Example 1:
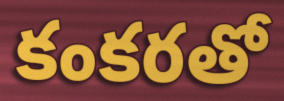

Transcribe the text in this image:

కంకరతో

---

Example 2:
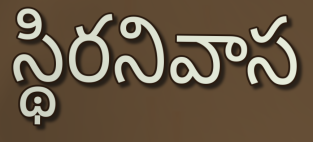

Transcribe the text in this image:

స్థిరనివాస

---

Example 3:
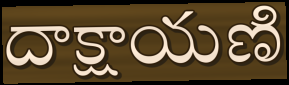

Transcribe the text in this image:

దాక్షాయణి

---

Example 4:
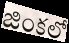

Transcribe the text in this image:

జింకలో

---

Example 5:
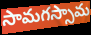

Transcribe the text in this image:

సామగస్సామ